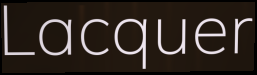
Lacquer